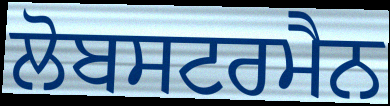
ਲੋਬਸਟਰਮੈਨ